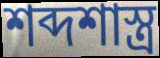
শব্দশাস্ত্র